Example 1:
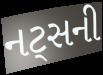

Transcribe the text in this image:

નટ્સની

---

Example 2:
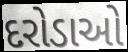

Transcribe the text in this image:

દરોડાઓ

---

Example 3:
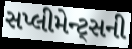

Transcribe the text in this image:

સપ્લીમેન્ટ્સની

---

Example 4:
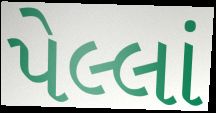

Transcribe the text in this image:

પેલ્લાં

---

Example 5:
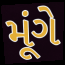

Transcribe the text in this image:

મૂંગે